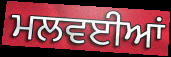
ਮਲਵਈਆਂ